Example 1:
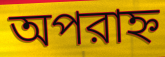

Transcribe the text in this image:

অপরাহ্ন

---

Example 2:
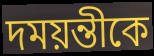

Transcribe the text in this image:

দময়ন্তীকে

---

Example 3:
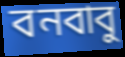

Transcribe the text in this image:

বনবাবু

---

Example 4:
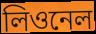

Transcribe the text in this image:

লিওনেল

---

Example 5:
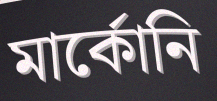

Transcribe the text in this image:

মার্কোনি